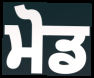
ਮੋਡ